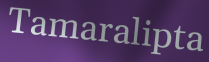
Tamaralipta